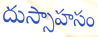
దుస్సాహసం